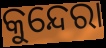
କୁନ୍ଦେରା